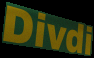
Divdi